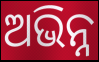
ଅଭିନ୍ନ